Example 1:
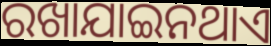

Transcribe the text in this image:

ରଖାଯାଇନଥାଏ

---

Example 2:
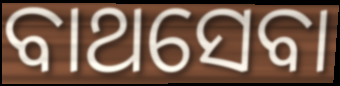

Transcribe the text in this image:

ବାଥସେବା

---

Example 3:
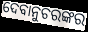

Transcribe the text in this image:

ଦେବାନୁଚରଙ୍କର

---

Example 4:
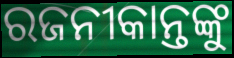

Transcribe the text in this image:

ରଜନୀକାନ୍ତଙ୍କୁ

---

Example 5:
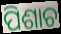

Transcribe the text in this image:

ପିଶାଚ